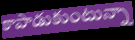
కాపాడుకుంటున్నా